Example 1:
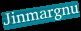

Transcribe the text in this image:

Jinmargnu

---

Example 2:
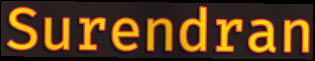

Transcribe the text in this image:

Surendran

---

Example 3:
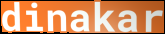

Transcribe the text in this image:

dinakar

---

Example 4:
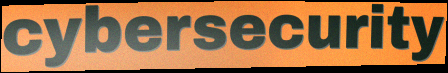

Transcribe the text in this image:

cybersecurity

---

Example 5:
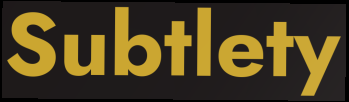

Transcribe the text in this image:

Subtlety